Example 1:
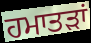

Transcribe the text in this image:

ਹਮਾਤੜਾਂ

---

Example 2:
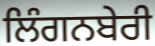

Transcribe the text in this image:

ਲਿੰਗਨਬੇਰੀ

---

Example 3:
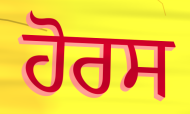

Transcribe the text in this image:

ਹੋਰਸ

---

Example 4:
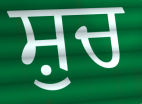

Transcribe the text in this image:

ਸ਼ੁਚ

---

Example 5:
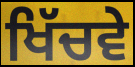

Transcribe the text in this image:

ਖਿੱਚਵੇ